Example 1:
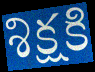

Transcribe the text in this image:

శిక్షకి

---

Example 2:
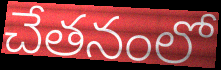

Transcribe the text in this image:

చేతనంలో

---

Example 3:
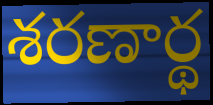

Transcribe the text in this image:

శరణార్థ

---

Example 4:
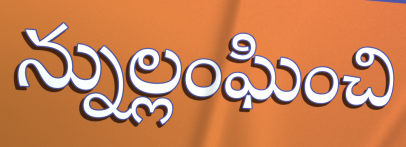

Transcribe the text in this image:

న్నుల్లంఘించి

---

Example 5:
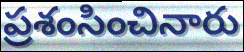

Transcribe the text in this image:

ప్రశంసించినారు